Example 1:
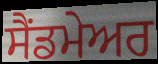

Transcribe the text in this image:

ਸੈਂਡਮੇਅਰ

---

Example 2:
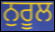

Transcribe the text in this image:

ਨੁਰੂਲ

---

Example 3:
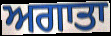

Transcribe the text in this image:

ਅਗਾਤਾ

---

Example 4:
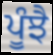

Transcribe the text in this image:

ਪੂੰਝੈ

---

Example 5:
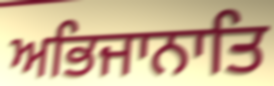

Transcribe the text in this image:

ਅਭਿਜਾਨਾਤਿ